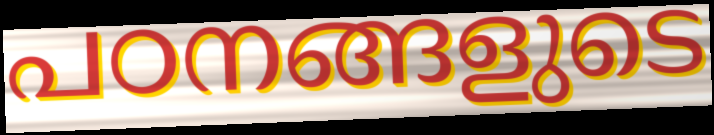
പഠനങ്ങളുടെ